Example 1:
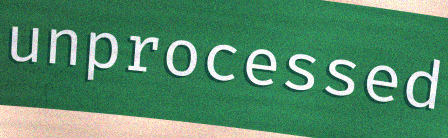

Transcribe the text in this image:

unprocessed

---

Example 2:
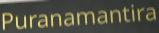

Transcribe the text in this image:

Puranamantira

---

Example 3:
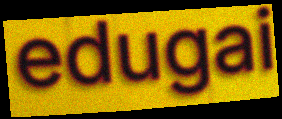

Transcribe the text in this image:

edugai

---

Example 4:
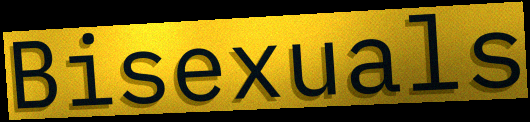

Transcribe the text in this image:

Bisexuals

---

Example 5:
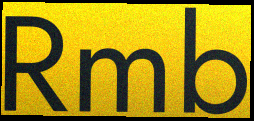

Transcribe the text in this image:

Rmb